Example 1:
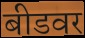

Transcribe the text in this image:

बीडवर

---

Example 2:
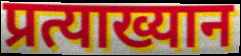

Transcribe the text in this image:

प्रत्याख्यान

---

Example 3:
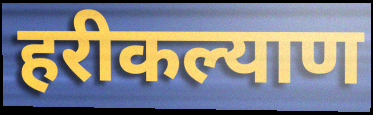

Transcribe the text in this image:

हरीकल्याण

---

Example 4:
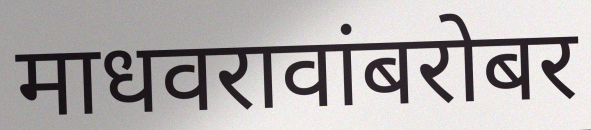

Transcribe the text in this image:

माधवरावांबरोबर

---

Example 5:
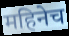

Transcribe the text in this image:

महिनेच